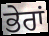
ਭੇਰਾਂ